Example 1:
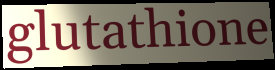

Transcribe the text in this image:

glutathione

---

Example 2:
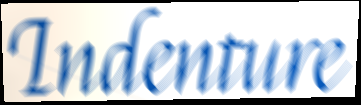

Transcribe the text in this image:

Indenture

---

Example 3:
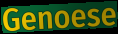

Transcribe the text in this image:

Genoese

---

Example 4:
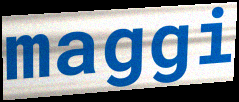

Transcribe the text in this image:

maggi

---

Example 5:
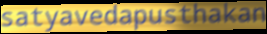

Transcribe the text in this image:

satyavedapusthakan